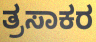
ತ್ರಸಾಕರ